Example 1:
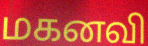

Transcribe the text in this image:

மகனவி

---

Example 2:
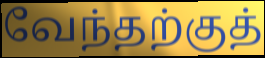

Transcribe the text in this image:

வேந்தற்குத்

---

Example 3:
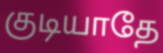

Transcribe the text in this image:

குடியாதே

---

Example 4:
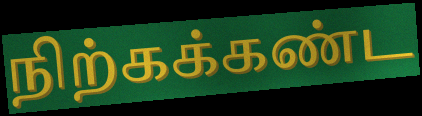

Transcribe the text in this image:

நிற்கக்கண்ட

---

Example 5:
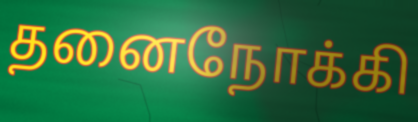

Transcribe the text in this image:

தனைநோக்கி